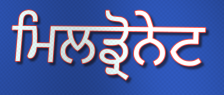
ਮਿਲਡ੍ਰੋਨੇਟ